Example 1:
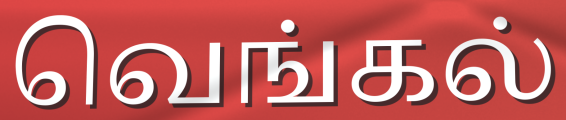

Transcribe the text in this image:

வெங்கல்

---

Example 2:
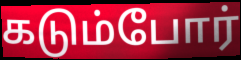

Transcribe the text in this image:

கடும்போர்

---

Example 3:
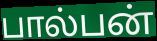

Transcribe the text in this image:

பால்பன்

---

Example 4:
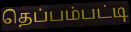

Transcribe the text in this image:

தெப்பம்பட்டி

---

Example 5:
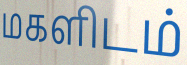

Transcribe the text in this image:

மகளிடம்